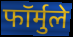
फॉर्मुले